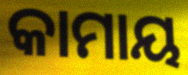
କାମାୟ